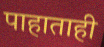
पाहाताही